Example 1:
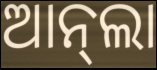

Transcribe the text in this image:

ଆନ୍‌ଲା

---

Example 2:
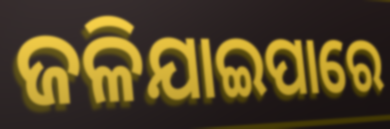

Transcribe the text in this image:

ଜଳିଯାଇପାରେ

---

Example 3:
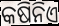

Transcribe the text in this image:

କଷିନିଏ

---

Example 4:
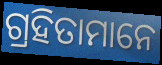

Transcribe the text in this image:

ଗ୍ରହିତାମାନେ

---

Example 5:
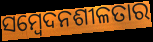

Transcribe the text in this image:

ସମ୍ୱେଦନଶୀଳତାର